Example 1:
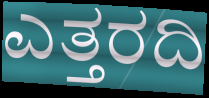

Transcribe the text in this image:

ಎತ್ತರದಿ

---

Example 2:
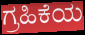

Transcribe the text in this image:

ಗ್ರಹಿಕೆಯ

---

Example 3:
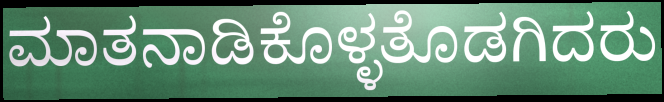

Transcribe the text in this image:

ಮಾತನಾಡಿಕೊಳ್ಳತೊಡಗಿದರು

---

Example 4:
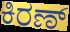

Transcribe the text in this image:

ಕಿರಣ್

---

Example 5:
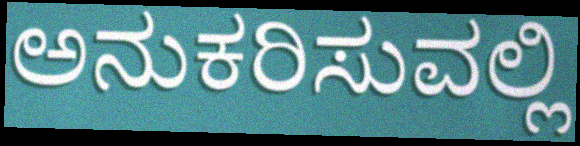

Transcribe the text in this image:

ಅನುಕರಿಸುವಲ್ಲಿ